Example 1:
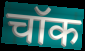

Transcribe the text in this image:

चॉक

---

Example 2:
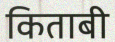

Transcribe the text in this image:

किताबी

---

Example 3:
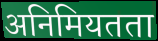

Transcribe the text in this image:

अनिमियतता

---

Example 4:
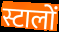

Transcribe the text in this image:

स्टालों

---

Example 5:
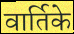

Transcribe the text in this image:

वार्तिके